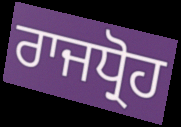
ਰਾਜਧ੍ਰੋਹ